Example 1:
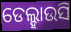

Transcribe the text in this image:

ଡେଲ୍ହାଉସି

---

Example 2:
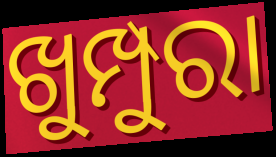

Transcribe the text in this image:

ଖୁମ୍ପୁରା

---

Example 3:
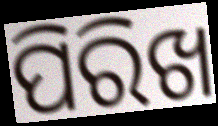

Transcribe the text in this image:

ପିରିଖ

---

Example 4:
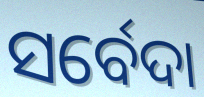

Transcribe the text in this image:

ସର୍ବେଦା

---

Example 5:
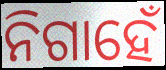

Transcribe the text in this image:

ନିଗାହେଁ